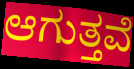
ಆಗುತ್ತವೆ